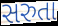
સરુતા